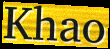
Khao